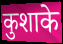
कुशाके